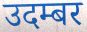
उदम्बर